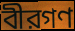
বীরগণ